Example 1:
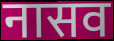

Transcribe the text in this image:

नासव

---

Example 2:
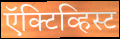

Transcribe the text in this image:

ऍक्टिव्हिस्ट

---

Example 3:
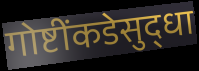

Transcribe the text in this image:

गोष्टींकडेसुद्धा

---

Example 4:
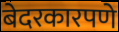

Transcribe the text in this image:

बेदरकारपणे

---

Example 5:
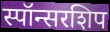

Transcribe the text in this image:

स्पॉन्सरशिप